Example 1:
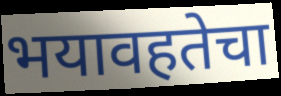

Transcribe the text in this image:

भयावहतेचा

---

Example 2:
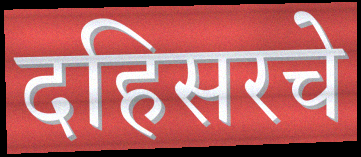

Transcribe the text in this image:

दहिसरचे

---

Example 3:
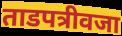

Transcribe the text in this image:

ताडपत्रीवजा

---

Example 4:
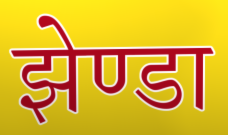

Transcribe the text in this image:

झेण्डा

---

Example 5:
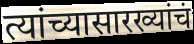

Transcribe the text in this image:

त्यांच्यासारख्यांचं